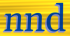
nnd